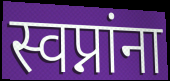
स्वप्नांना